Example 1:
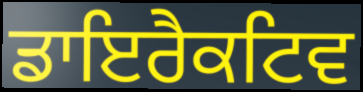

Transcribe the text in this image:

ਡਾਇਰੈਕਟਿਵ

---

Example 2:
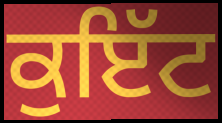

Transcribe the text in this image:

ਕੁਇੱਟ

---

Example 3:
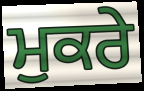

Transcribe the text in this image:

ਮੁਕਰੇ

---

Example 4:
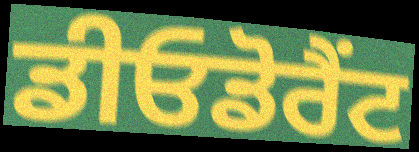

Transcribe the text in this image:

ਡੀਓਡੋਰੈਂਟ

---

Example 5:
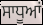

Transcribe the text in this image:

ਸਾਧੂਆਂ